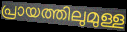
പ്രായത്തിലുമുള്ള